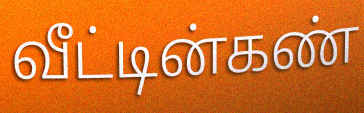
வீட்டின்கண்